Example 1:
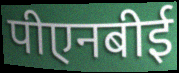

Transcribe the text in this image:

पीएनबीई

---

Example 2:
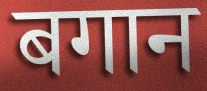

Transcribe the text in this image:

बगान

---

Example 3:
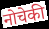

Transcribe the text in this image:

नोचेकी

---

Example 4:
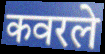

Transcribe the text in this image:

कवरले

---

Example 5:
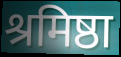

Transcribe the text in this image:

श्रमिष्ठा